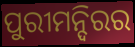
ପୁରୀମନ୍ଦିରର